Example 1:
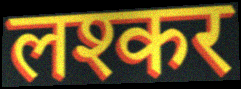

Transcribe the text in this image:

लश्‍कर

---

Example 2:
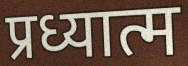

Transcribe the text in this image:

प्रध्यात्म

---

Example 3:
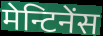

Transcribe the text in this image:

मेन्टिनेंस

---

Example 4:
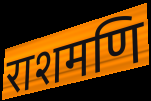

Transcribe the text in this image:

राशमणि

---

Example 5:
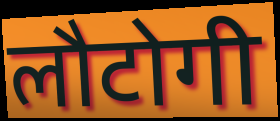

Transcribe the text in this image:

लौटोगी